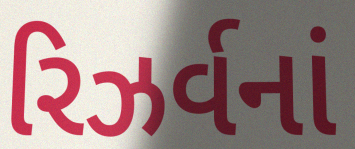
રિઝર્વનાં